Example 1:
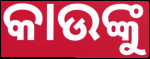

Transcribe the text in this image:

କାଉଙ୍କୁ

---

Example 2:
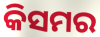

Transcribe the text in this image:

କିସମର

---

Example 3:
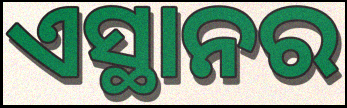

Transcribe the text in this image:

ଏସ୍ଥାନର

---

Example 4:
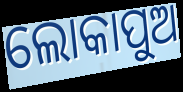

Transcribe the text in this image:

ଲୋକାପୁଅ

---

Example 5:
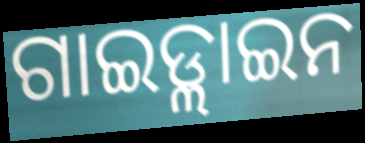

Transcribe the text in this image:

ଗାଇଡ୍ଲାଇନ